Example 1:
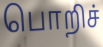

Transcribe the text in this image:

பொறிச்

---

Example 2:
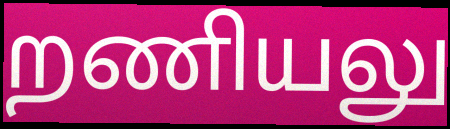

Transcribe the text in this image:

றணியலு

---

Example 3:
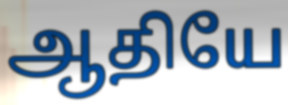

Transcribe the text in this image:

ஆதியே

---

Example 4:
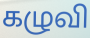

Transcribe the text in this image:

கழுவி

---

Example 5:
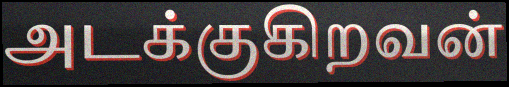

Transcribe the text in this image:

அடக்குகிறவன்